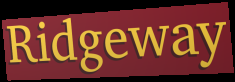
Ridgeway